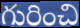
గురించి